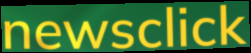
newsclick